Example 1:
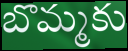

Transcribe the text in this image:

బొమ్మకు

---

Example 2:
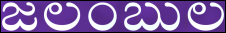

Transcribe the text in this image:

జలంబుల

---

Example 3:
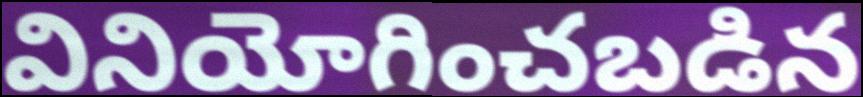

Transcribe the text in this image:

వినియోగించబడిన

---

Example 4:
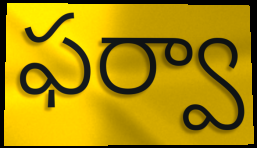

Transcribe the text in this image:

ఫర్వా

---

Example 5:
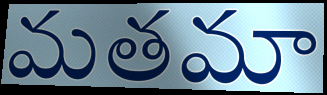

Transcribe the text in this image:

మతమా